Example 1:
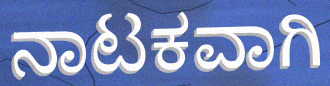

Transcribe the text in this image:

ನಾಟಕವಾಗಿ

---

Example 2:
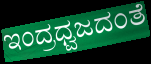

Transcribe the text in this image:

ಇಂದ್ರಧ್ವಜದಂತೆ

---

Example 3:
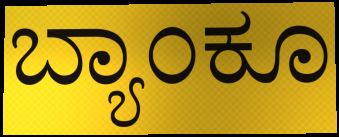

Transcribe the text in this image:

ಬ್ಯಾಂಕೂ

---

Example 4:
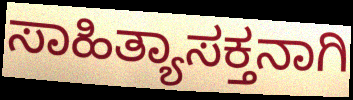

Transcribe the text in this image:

ಸಾಹಿತ್ಯಾಸಕ್ತನಾಗಿ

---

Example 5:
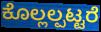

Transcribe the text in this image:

ಕೊಲ್ಲಲ್ಪಟ್ಟರೆ